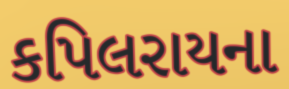
કપિલરાયના